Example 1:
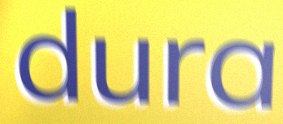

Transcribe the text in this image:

dura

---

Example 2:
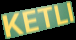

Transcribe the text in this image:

KETLI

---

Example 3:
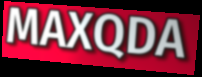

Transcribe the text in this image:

MAXQDA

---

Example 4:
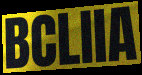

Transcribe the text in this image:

BCLIIA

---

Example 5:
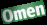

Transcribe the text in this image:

Omen